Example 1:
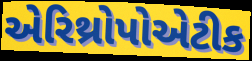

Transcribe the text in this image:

એરિથ્રોપોએટીક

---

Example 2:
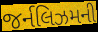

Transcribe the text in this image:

જર્નલિઝમની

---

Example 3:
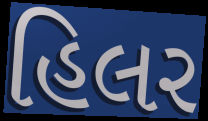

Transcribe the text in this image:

હિલર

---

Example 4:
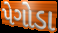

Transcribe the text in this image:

પેગોડા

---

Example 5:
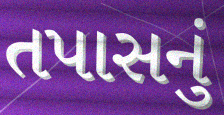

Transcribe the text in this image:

તપાસનું